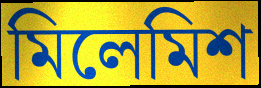
মিলেমিশ